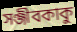
সঞ্জীবকাকু